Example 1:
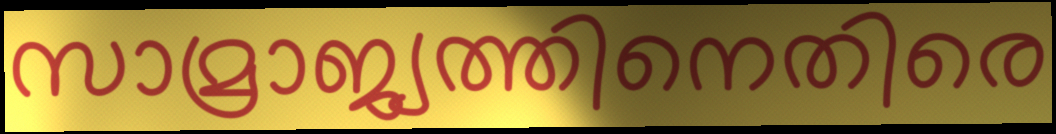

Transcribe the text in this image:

സാമ്രാജ്യത്തിനെതിരെ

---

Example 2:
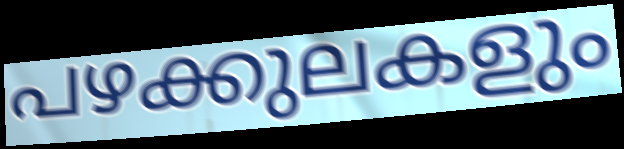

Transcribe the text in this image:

പഴക്കുലകളും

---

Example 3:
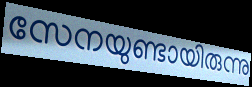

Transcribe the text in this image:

സേനയുണ്ടായിരുന്നു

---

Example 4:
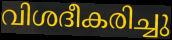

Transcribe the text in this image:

വിശദീകരിച്ചു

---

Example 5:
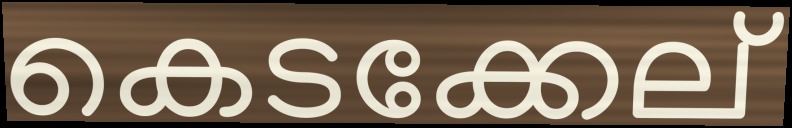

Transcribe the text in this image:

കെടക്കേല്